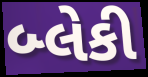
બ્લેકી